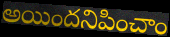
అయిందనిపించాం